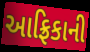
આફ્રિકાની